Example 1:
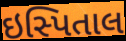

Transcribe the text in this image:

ઇસ્પિતાલ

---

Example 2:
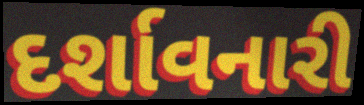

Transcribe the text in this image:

દર્શાવનારી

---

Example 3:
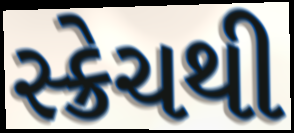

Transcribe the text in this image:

સ્ક્રેચથી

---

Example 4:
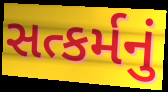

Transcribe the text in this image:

સત્કર્મનું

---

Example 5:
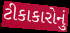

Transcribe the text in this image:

ટીકાકારોનું